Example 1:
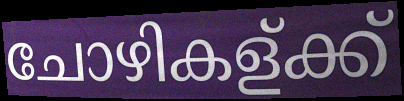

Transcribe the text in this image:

ചോഴികള്ക്ക്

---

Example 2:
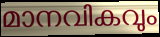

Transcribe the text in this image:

മാനവികവും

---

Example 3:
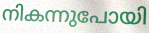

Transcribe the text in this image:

നികന്നുപോയി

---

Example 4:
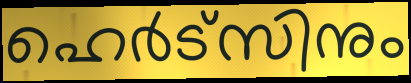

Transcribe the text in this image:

ഹെർട്സിനും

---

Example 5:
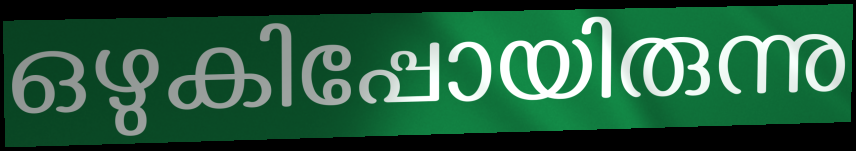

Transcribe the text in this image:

ഒഴുകിപ്പോയിരുന്നു